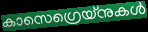
കാസെഗ്രെയ്നുകൾ